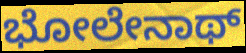
ಭೋಲೇನಾಥ್